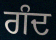
ਗੰਦ